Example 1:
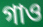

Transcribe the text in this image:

গাও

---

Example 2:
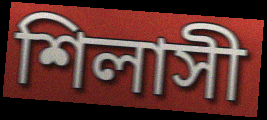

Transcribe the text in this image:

শিলাসী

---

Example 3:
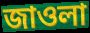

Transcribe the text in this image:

জাওলা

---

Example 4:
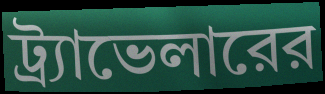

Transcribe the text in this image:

ট্র্যাভেলারের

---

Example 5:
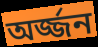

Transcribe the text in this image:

অর্জ্জন